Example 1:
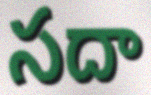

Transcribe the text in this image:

సదా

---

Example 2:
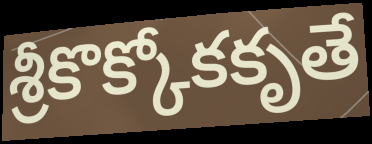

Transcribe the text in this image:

శ్రీకొక్కోకకృతే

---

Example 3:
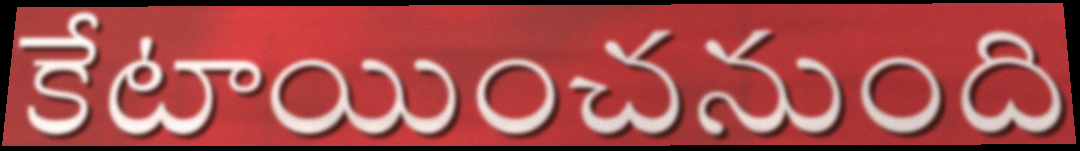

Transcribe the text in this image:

కేటాయించనుంది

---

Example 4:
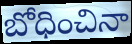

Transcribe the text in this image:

బోధించినా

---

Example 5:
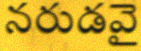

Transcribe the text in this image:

నరుడవై